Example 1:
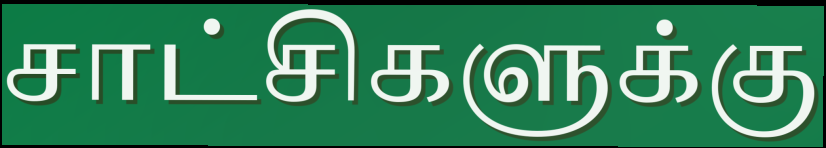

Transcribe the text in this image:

சாட்சிகளுக்கு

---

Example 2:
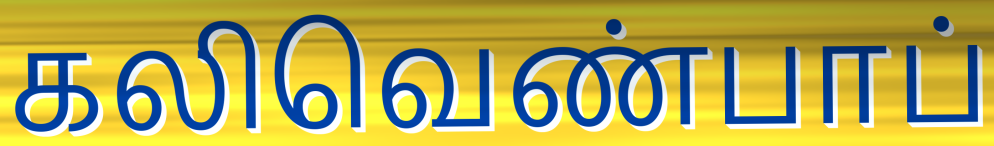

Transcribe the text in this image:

கலிவெண்பாப்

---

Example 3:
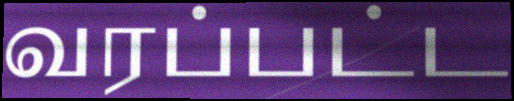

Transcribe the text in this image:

வரப்பட்ட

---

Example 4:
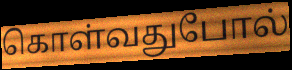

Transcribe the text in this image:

கொள்வதுபோல்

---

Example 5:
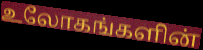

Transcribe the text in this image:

உலோகங்களின்